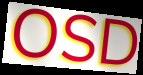
OSD